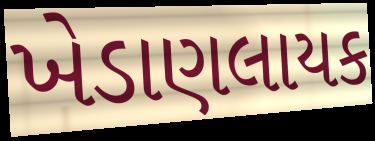
ખેડાણલાયક